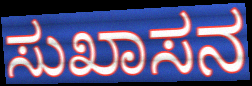
ಸುಖಾಸನ